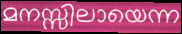
മനസ്സിലായെന്ന